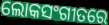
ଲୋକସଂଗୀତରେ